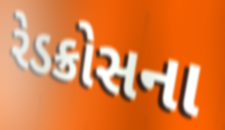
રેડક્રોસના